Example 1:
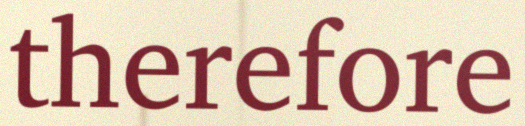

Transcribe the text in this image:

therefore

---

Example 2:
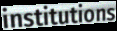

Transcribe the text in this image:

institutions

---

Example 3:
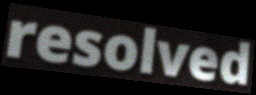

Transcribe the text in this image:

resolved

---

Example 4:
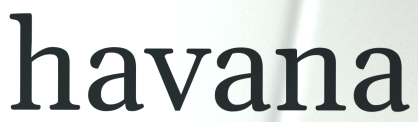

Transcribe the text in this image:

havana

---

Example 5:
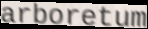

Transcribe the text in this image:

arboretum